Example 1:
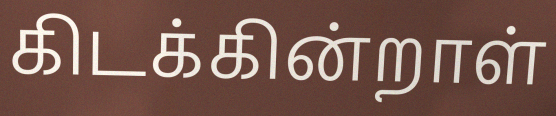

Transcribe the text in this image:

கிடக்கின்றாள்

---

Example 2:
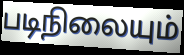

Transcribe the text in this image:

படிநிலையும்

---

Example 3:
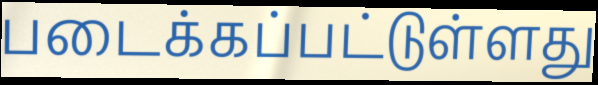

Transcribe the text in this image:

படைக்கப்பட்டுள்ளது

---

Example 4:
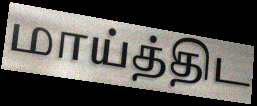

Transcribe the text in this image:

மாய்த்திட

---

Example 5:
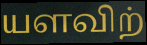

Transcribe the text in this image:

யளவிற்